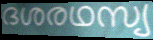
ദശരഥസ്യ